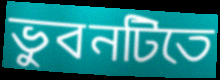
ভুবনটিতে